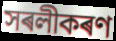
সৰলীকৰণ